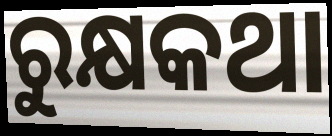
ରୁକ୍ଷକଥା